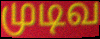
முடிவ